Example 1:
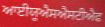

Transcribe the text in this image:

ਆਈਯੂਐਸਐਸਟੀਐਫ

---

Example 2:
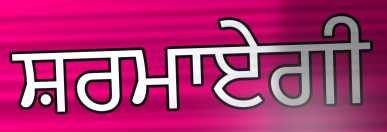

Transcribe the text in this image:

ਸ਼ਰਮਾਏਗੀ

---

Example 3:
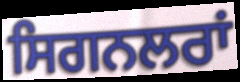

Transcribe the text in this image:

ਸਿਗਨਲਰਾਂ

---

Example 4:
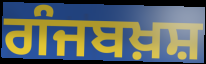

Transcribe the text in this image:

ਗੰਜਬਖ਼ਸ਼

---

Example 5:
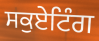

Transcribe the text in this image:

ਸਕੁਏਟਿੰਗ